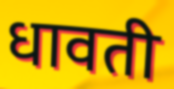
धावती